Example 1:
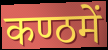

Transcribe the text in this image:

कण्ठमें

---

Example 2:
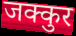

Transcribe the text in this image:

जक्कुर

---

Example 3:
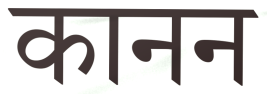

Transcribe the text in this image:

कानन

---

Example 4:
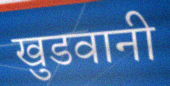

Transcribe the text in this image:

खुडवानी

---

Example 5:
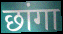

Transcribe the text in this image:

छांगा